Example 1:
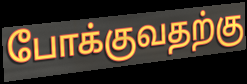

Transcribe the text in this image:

போக்குவதற்கு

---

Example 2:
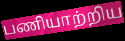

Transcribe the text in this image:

பணியாற்றிய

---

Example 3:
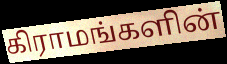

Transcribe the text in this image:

கிராமங்களின்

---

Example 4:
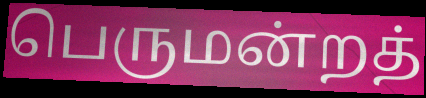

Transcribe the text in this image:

பெருமன்றத்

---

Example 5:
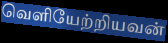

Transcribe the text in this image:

வெளியேற்றியவன்